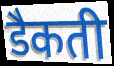
डैकती